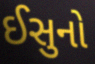
ઈસુનો